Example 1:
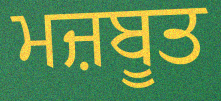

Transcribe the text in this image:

ਮਜ਼ਬੂਤ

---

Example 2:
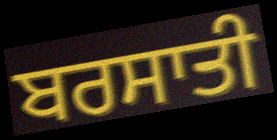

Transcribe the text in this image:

ਬਰਸਾਤੀ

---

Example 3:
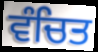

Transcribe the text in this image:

ਵੰਚਿਤ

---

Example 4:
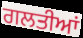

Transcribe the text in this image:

ਗਲਤੀਆਂ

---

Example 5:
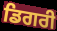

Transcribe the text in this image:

ਡਿਗਰੀ